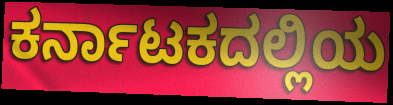
ಕರ್ನಾಟಕದಲ್ಲಿಯ